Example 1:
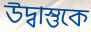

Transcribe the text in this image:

উদ্বাস্তুকে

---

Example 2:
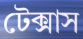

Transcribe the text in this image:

টেক্সাস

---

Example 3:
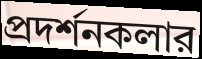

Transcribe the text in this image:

প্রদর্শনকলার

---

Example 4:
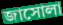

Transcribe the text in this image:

জাসোলা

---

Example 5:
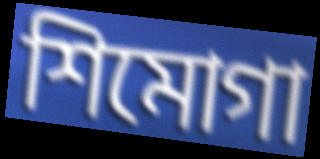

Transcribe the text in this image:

শিমোগা